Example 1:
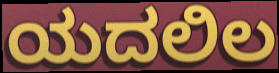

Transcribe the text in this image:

ಯದಲಿಲ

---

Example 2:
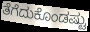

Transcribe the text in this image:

ತೆಗೆದುಕೊಂಡಷ್ಟು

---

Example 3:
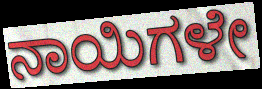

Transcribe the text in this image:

ನಾಯಿಗಳೇ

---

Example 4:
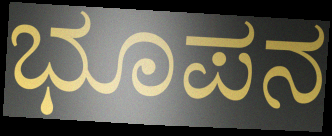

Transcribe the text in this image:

ಭೂಪನ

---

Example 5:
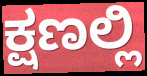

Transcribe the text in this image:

ಕ್ಷಣಲ್ಲಿ